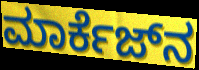
ಮಾರ್ಕೆಜ್‌ನ